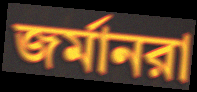
জর্মানরা